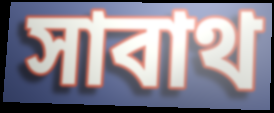
সাবাথ